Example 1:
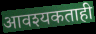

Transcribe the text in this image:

आवश्यकताही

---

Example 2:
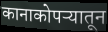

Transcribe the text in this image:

कानाकोपऱ्यातून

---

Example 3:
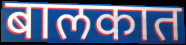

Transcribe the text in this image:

बालकात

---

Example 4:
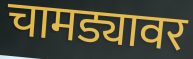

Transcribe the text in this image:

चामड्यावर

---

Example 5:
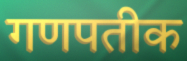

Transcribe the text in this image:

गणपतीक